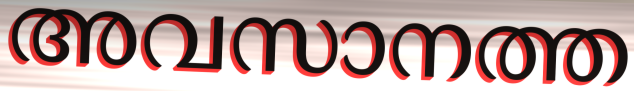
അവസാനത്ത